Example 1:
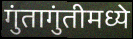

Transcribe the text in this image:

गुंतागुंतीमध्ये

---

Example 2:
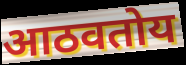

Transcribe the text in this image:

आठवतोय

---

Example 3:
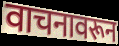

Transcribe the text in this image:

वाचनावरून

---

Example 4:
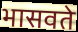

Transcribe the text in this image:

भासवते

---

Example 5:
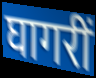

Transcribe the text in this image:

घागरीं